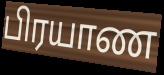
பிரயாண